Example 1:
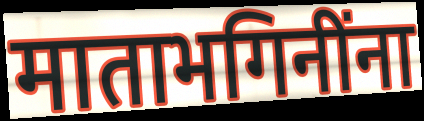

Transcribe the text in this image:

माताभगिनींना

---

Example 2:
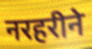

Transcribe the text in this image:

नरहरीने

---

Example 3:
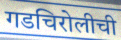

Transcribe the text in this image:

गडचिरोलीची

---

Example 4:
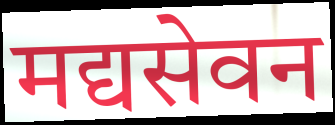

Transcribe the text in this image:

मद्यसेवन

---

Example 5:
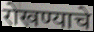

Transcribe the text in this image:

रोखण्याचे